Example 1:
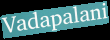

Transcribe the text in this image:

Vadapalani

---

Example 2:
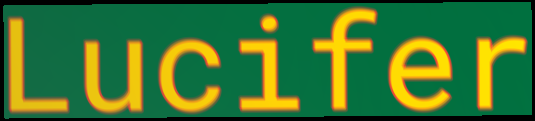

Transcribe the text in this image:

Lucifer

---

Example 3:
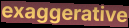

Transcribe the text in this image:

exaggerative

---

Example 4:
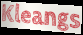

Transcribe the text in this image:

Kleangs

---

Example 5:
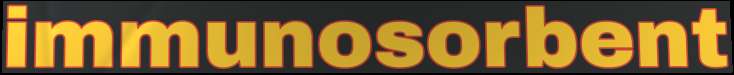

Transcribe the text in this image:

immunosorbent